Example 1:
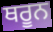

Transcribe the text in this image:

ਥਰੂਨ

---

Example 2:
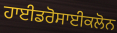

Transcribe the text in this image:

ਹਾਈਡਰੋਸਾਈਕਲੋਨ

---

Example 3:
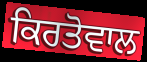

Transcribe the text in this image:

ਕਿਰਤੋਵਾਲ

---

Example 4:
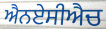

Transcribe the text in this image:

ਐਨਏਸੀਐਚ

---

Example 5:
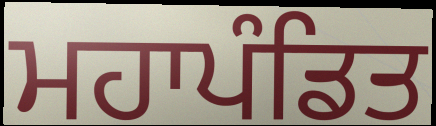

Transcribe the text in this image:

ਮਹਾਪੰਡਿਤ